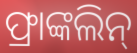
ଫ୍ରାଙ୍କଲିନ୍